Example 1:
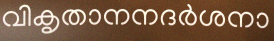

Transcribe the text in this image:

വികൃതാനനദർശനാ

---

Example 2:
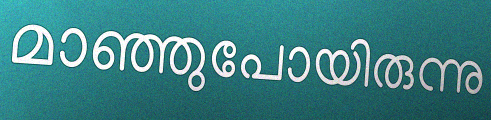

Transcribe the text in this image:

മാഞ്ഞുപോയിരുന്നു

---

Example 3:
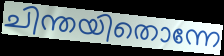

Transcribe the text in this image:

ചിന്തയിതൊന്നേ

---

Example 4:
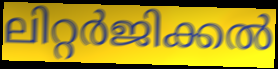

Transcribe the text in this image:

ലിറ്റർജിക്കൽ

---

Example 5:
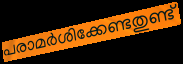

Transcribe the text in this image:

പരാമർശിക്കേണ്ടതുണ്ട്